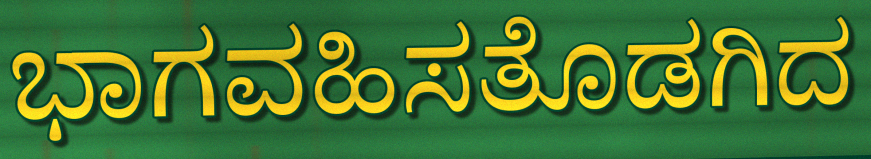
ಭಾಗವಹಿಸತೊಡಗಿದ